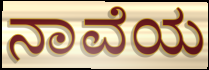
ನಾವೆಯ